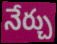
నేర్చు